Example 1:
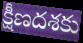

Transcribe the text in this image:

క్షీణదశకు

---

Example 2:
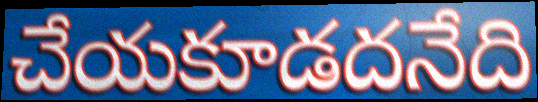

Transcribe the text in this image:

చేయకూడదనేది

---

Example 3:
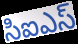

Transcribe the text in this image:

సిఐఎస్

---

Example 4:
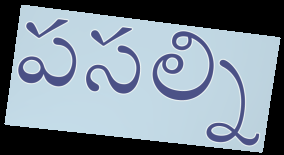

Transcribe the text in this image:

పసల్ని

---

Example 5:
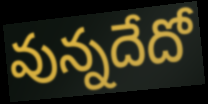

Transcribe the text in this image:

వున్నదేదో